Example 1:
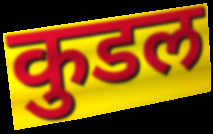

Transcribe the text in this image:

कुडल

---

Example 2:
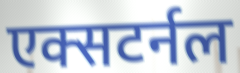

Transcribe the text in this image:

एक्सटर्नल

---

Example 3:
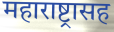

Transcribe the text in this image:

महाराष्ट्रासह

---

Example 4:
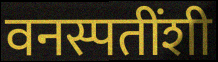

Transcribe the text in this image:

वनस्पतींशी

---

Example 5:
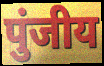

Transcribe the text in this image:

पुंजीय